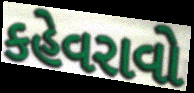
કહેવરાવો